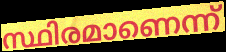
സ്ഥിരമാണെന്ന്